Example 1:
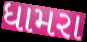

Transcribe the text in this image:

ધામરા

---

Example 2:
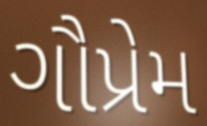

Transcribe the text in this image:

ગૌપ્રેમ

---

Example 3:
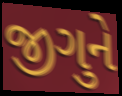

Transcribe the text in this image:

જીગુને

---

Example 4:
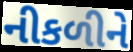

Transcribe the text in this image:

નીકળીને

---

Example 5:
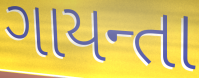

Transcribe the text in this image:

ગાયન્તા